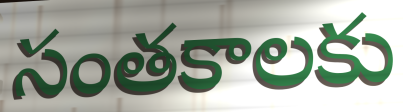
సంతకాలకు